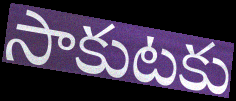
సాకుటకు